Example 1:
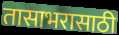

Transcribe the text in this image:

तासाभरासाठी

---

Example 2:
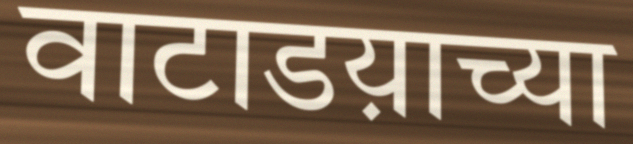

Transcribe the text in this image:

वाटाडय़ाच्या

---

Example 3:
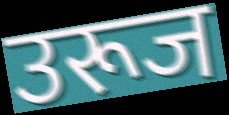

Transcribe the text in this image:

उरूज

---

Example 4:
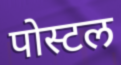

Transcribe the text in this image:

पोस्टल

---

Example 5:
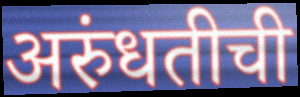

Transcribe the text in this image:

अरुंधतीची